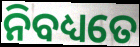
ନିବଧ୍ୟତେ